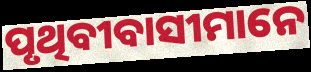
ପୃଥିବୀବାସୀମାନେ